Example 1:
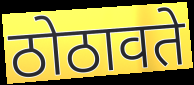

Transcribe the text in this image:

ठोठावते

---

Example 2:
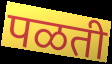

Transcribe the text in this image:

पळती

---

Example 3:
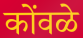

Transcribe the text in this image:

कोंवळे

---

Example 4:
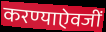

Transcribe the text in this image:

करण्याऐवजीं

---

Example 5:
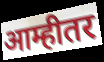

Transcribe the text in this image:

आम्हीतर